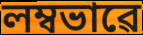
লম্বভাৱে